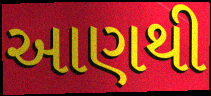
આણથી